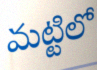
మట్టిలో